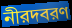
নীরদবরণ